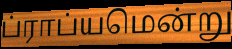
ப்ராப்யமென்று